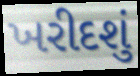
ખરીદશું